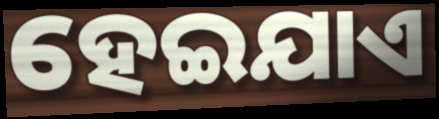
ହେଇଯାଏ